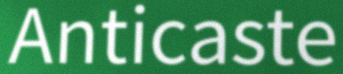
Anticaste